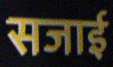
सजाई